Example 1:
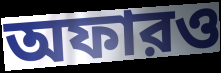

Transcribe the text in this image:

অফারও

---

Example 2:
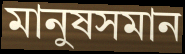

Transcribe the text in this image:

মানুষসমান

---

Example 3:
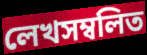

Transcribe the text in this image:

লেখসম্বলিত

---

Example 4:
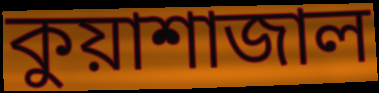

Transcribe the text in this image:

কুয়াশাজাল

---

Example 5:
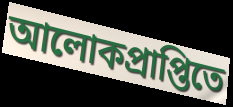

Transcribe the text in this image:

আলোকপ্রাপ্তিতে